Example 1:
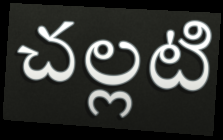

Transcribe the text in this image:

చల్లటి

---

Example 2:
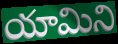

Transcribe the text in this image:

యామిని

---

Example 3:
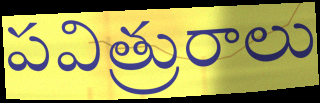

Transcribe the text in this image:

పవిత్రురాలు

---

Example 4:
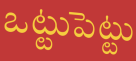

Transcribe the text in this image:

ఒట్టుపెట్టు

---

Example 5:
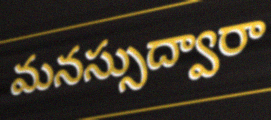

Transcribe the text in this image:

మనస్సుద్వారా